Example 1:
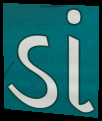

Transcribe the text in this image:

ડાં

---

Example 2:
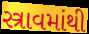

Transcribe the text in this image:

સ્ત્રાવમાંથી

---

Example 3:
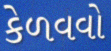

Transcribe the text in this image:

કેળવવો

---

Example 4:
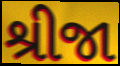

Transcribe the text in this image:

શ્રીજા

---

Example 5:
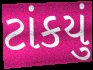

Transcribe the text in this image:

ટાંકયું